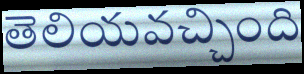
తెలియవచ్చింది